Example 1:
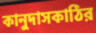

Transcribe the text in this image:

কানুদাসকাঠির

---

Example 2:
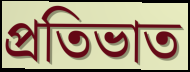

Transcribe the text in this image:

প্রতিভাত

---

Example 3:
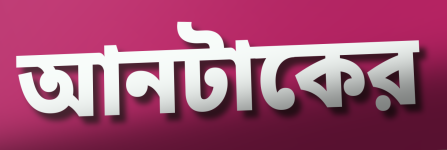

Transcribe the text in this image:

আনটাকের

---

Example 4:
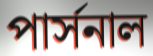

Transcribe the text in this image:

পার্সনাল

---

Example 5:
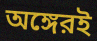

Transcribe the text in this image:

অঙ্গেরই